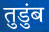
तुडुंब